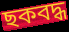
ছকবদ্ধ